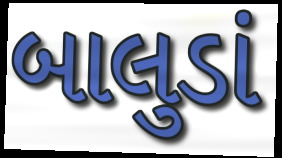
બાલુડાં